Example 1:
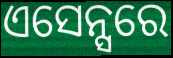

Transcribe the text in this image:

ଏସେନ୍ସରେ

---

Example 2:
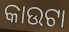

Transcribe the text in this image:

କାଉଟା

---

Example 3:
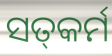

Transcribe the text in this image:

ସତ୍‍କର୍ମ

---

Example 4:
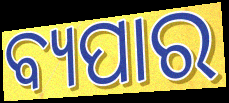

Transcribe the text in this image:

ବ୍ୟପାର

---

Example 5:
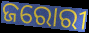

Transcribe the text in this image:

ଜରୋରୀ